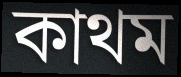
কাথম